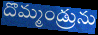
దొమ్మండ్రును